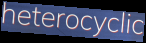
heterocyclic